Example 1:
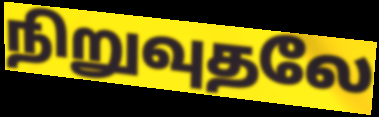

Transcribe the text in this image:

நிறுவுதலே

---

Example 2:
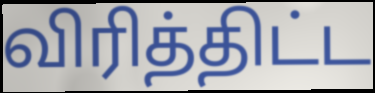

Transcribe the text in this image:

விரித்திட்ட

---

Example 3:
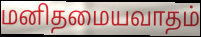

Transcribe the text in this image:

மனிதமையவாதம்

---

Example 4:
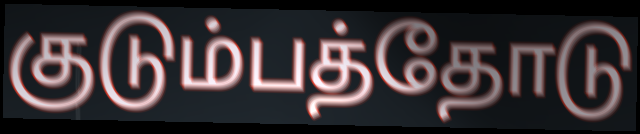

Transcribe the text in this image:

குடும்பத்தோடு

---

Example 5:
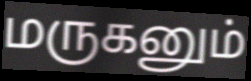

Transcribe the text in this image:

மருகனும்